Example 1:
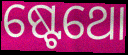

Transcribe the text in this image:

ଷ୍ଟେଥୋ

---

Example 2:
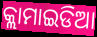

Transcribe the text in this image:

କ୍ଲାମାଇଡିଆ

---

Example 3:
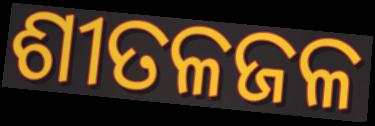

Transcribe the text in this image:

ଶୀତଳଜଳ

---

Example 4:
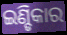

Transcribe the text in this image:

ଇଣ୍ଡିକାର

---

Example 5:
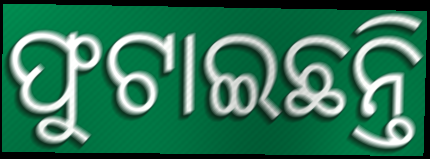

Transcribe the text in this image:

ଫୁଟାଇଛନ୍ତି